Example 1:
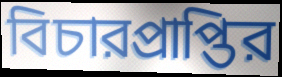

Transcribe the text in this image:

বিচারপ্রাপ্তির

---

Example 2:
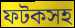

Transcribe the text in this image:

ফটকসহ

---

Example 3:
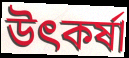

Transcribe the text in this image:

উৎকর্ষা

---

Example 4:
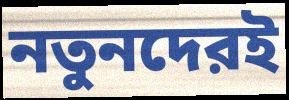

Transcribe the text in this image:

নতুনদেরই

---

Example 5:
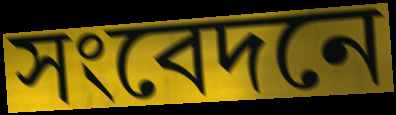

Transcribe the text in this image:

সংবেদনে